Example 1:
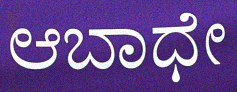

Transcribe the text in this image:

ಆಬಾಧೇ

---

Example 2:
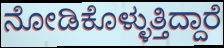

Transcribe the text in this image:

ನೋಡಿಕೊಳ್ಳುತ್ತಿದ್ದಾರೆ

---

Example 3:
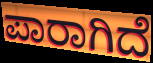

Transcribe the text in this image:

ಪಾರಾಗಿದೆ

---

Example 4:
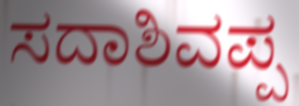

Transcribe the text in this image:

ಸದಾಶಿವಪ್ಪ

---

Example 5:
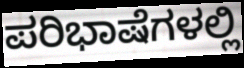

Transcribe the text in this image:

ಪರಿಭಾಷೆಗಳಲ್ಲಿ